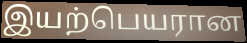
இயற்பெயரான